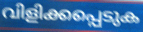
വിളിക്കപ്പെടുക